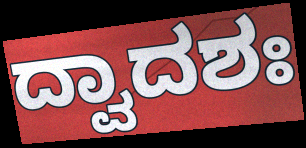
ದ್ವಾದಶಃ